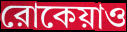
রোকেয়াও